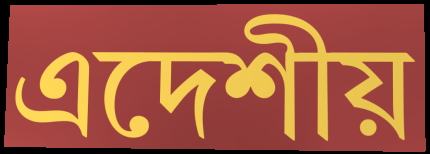
এদেশীয়